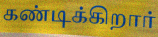
கண்டிக்கிறார்